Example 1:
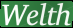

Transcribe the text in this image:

Welth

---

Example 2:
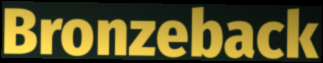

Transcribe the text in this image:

Bronzeback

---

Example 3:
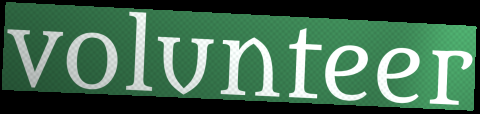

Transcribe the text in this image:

volunteer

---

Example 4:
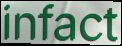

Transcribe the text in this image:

infact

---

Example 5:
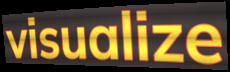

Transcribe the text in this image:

visualize